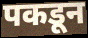
पकडून